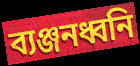
ব্যঞ্জনধ্বনি